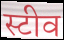
स्टीव